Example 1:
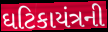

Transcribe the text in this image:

ઘટિકાયંત્રની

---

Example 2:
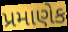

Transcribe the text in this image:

પ્રમાણેક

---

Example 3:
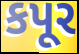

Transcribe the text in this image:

કપૂર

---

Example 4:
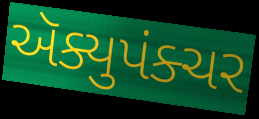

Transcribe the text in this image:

ઍક્યુપંક્ચર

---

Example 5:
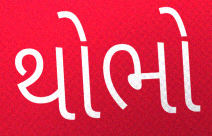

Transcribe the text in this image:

થોભો